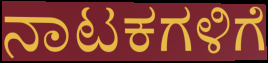
ನಾಟಕಗಳಿಗೆ